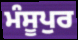
ਮੰਸੂਪੁਰ